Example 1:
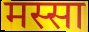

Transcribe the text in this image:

मस्‍सा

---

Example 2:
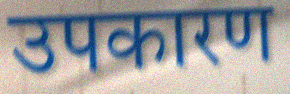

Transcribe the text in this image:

उपकारण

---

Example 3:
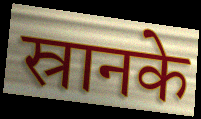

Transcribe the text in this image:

स्रानके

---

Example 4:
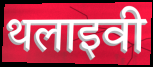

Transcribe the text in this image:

थलाइवी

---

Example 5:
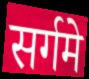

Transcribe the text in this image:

सर्गमे